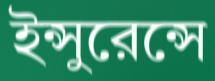
ইন্সুরেন্সে